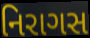
નિરાગસ